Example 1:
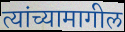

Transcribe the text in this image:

त्यांच्यामागील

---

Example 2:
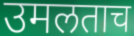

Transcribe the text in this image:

उमलताच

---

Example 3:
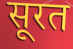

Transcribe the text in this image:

सूरत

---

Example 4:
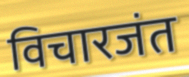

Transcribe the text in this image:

विचारजंत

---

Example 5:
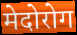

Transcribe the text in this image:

मेदोरोग